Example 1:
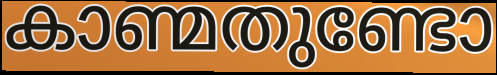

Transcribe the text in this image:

കാണ്മതുണ്ടോ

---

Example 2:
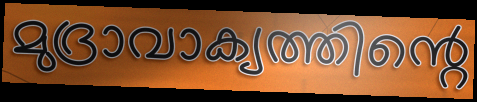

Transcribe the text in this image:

മുദ്രാവാക്യത്തിന്റെ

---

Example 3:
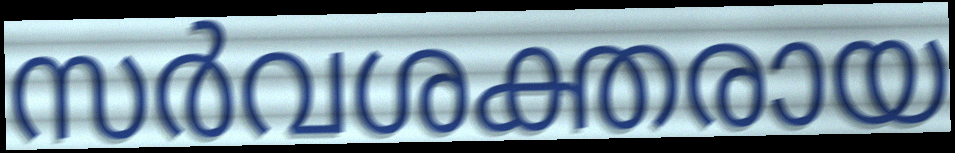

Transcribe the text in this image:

സർവശക്തരായ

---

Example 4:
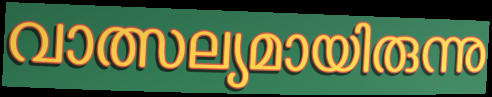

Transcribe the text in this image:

വാത്സല്യമായിരുന്നു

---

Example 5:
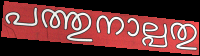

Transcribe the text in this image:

പത്തുനാല്പതു